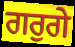
ਗਰੁਗੇ